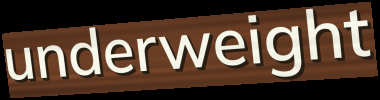
underweight